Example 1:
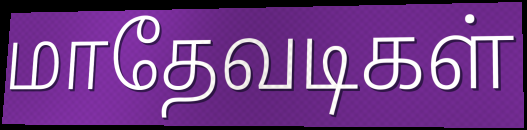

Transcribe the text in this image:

மாதேவடிகள்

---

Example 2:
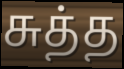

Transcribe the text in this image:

சுத்த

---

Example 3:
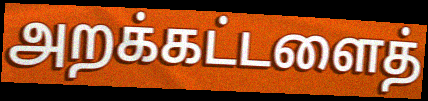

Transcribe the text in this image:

அறக்கட்டளைத்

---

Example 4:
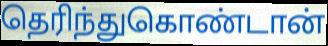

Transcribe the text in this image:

தெரிந்துகொண்டான்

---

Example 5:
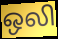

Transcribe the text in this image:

ஒலி